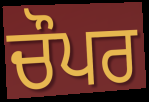
ਚੌਪਰ